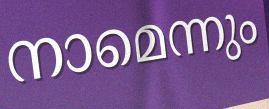
നാമെന്നും